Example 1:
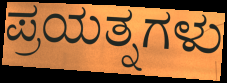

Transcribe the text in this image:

ಪ್ರಯತ್ನಗಳು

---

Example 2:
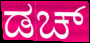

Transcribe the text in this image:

ಡಚ್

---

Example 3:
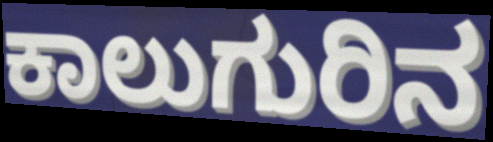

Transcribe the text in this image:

ಕಾಲುಗುರಿನ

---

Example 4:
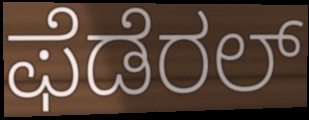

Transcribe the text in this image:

ಫೆಡೆರಲ್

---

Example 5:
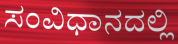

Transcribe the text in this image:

ಸಂವಿಧಾನದಲ್ಲಿ